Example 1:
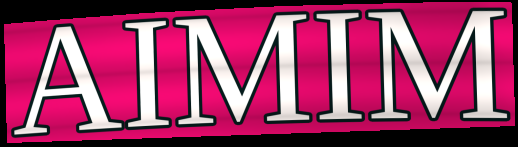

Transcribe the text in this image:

AIMIM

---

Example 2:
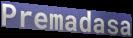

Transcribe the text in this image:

Premadasa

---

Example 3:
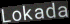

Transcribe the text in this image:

Lokada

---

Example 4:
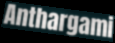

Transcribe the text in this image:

Anthargami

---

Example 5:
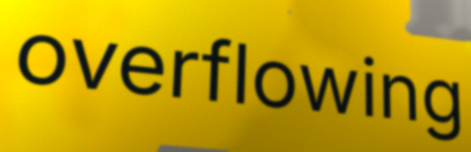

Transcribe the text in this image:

overflowing